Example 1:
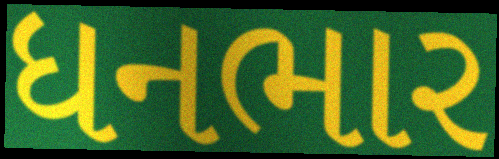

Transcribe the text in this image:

ધનભાર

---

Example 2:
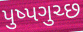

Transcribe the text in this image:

પુષ્પગુચ્છ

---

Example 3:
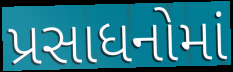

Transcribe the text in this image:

પ્રસાધનોમાં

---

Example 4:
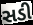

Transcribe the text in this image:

સડી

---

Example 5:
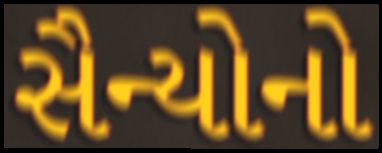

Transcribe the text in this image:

સૈન્યોનો